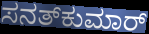
ಸನತ್‌ಕುಮಾರ್